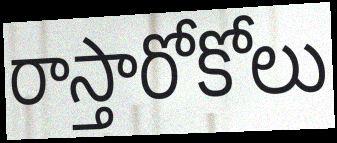
రాస్తారోకోలు